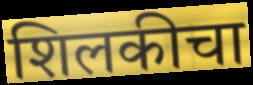
शिलकीचा